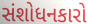
સંશોધનકારો